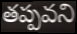
తప్పవని